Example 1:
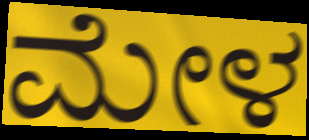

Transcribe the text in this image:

ಮೇಳ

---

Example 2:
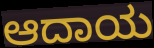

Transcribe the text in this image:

ಆದಾಯ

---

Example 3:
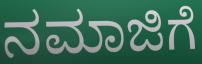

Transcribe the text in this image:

ನಮಾಜಿಗೆ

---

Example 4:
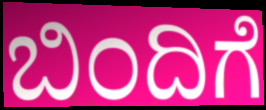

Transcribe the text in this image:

ಬಿಂದಿಗೆ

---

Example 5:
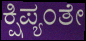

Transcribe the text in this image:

ಕ್ಷಿಪ್ಯಂತೇ